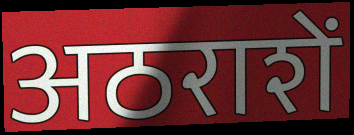
अठराशें